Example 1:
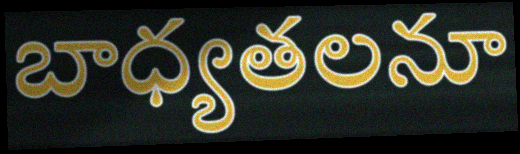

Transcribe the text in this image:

బాధ్యతలనూ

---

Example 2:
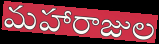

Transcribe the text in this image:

మహారాజుల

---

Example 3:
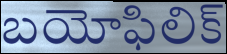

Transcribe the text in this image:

బయోఫిలిక్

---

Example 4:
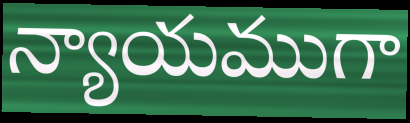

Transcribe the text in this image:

న్యాయముగా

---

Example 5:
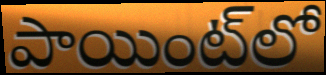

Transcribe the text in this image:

పాయింట్‌లో